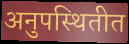
अनुपस्थितीत